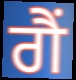
ਗੈਂ